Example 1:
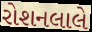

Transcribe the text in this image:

રોશનલાલે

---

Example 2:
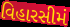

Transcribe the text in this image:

વિહારસીમં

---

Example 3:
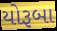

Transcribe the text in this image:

યોરૂબા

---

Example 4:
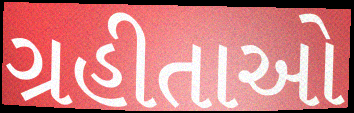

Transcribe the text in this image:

ગ્રહીતાઓ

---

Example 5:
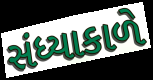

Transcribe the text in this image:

સંધ્યાકાળે